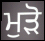
ਮੁਡ਼ੋ